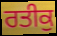
ਰਤੀਕੁ